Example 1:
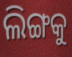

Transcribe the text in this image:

ଲିଙ୍ଗକୁ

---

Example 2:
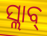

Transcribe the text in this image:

ସ୍ଲାବ୍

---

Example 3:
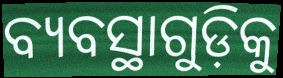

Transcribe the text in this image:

ବ୍ୟବସ୍ଥାଗୁଡ଼ିକୁ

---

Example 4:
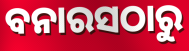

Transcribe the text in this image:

ବନାରସଠାରୁ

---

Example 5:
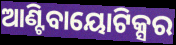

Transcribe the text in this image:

ଆଣ୍ଟିବାୟୋଟିକ୍ସର